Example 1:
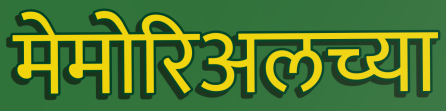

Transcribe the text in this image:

मेमोरिअलच्या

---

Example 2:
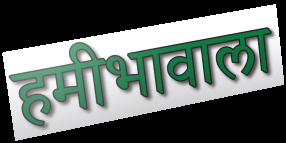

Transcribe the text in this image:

हमीभावाला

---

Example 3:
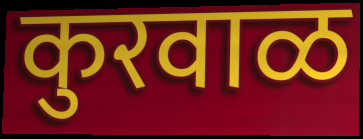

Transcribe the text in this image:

कुरवाळ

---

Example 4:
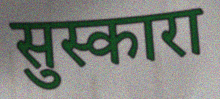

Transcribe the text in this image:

सुस्कारा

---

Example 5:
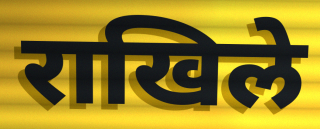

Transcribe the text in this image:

राखिले